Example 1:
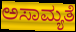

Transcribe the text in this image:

ಅಸಾಮ್ಯತೆ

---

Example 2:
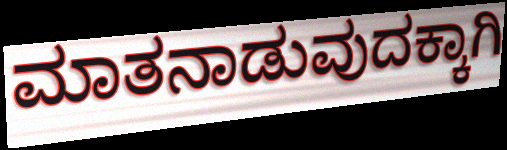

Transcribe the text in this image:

ಮಾತನಾಡುವುದಕ್ಕಾಗಿ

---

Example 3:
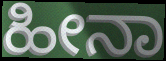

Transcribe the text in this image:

ಹೀನಾ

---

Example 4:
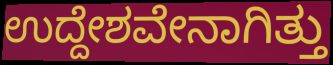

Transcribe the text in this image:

ಉದ್ದೇಶವೇನಾಗಿತ್ತು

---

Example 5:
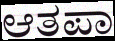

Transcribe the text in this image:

ಆತಪಾ